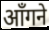
आँगने